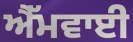
ਐੱਮਵਾਈ